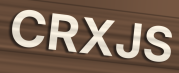
CRXJS